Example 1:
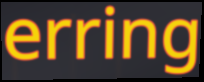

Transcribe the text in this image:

erring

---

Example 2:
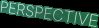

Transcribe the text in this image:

PERSPECTIVE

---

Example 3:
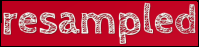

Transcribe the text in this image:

resampled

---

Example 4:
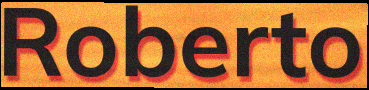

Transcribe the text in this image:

Roberto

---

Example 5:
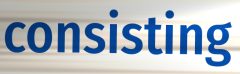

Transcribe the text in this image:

consisting